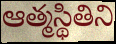
ఆత్మస్థితిని